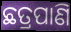
ଛତ୍ରପାଣି